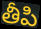
తీపి